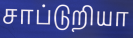
சாப்டுறியா